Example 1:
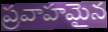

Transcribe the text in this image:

ప్రవాహమైన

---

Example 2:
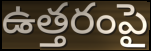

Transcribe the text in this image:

ఉత్తరంపై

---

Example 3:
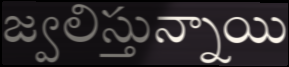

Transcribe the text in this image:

జ్వలిస్తున్నాయి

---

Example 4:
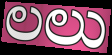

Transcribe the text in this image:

లలు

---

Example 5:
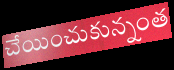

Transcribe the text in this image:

చేయించుకున్నంత